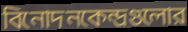
বিনোদনকেন্দ্রগুলোর